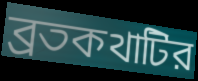
ব্রতকথাটির